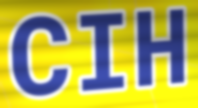
CIH